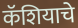
कॅशियाचे